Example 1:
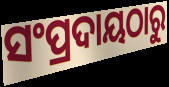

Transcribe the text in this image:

ସଂପ୍ରଦାୟଠାରୁ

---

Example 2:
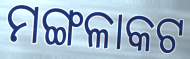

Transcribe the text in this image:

ମଙ୍ଗଳାକଟ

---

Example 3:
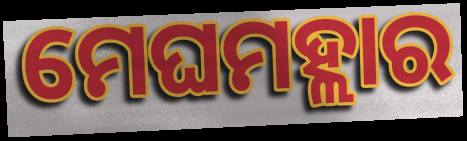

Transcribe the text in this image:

ମେଘମହ୍ଲାର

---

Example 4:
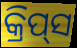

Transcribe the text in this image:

କ୍ରିପ୍‍ସ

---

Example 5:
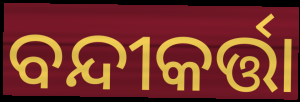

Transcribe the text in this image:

ବନ୍ଦୀକର୍ତ୍ତା